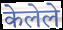
केलेले